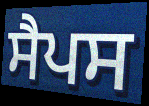
ਸੈਪਸ